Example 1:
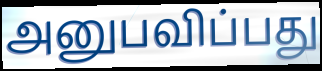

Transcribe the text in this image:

அனுபவிப்பது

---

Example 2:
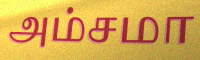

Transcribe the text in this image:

அம்சமா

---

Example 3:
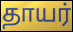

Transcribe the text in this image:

தாயர்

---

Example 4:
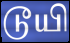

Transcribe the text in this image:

டூயி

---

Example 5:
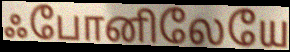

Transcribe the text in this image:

ஃபோனிலேயே